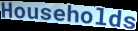
Households